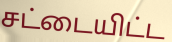
சட்டையிட்ட